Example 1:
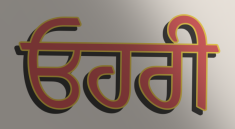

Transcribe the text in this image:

ਓਹਰੀ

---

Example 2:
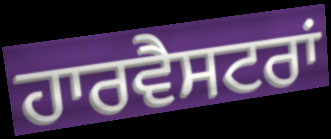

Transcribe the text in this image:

ਹਾਰਵੈਸਟਰਾਂ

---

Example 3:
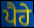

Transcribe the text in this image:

ਪੈਹੇ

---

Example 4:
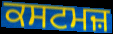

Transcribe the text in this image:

ਕਸਟਮਜ਼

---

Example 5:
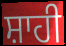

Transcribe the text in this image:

ਸ਼ਾਹੀ